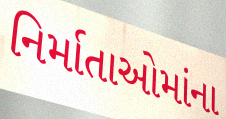
નિર્માતાઓમાંના